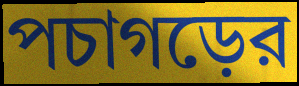
পচাগড়ের